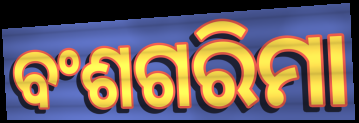
ବଂଶଗରିମା